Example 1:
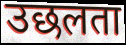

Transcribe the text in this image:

उछलता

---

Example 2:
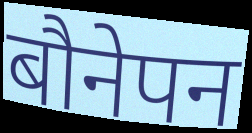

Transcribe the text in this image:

बौनेपन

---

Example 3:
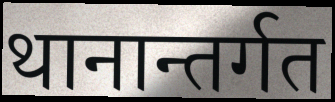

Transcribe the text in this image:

थानान्तर्गत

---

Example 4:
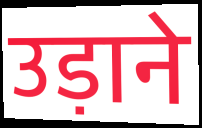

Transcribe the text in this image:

उड़ाने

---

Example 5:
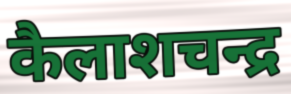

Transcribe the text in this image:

कैलाशचन्द्र